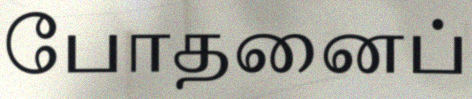
போதனைப்